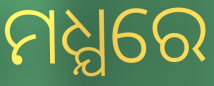
ମଧ୍ଯରେ